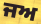
ਜਅ